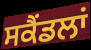
ਸਕੈਂਡਲਾਂ